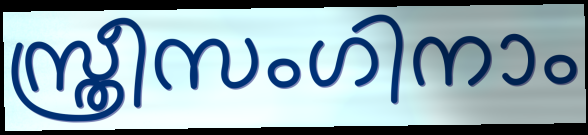
സ്ത്രീസംഗിനാം